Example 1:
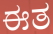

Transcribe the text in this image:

ಈತ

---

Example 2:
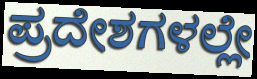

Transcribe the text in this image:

ಪ್ರದೇಶಗಳಲ್ಲೇ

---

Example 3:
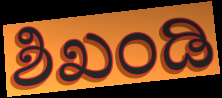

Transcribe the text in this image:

ಶಿಖಂಡಿ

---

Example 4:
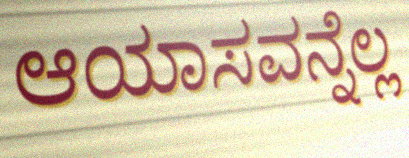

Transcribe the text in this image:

ಆಯಾಸವನ್ನೆಲ್ಲ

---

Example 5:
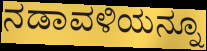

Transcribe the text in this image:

ನಡಾವಳಿಯನ್ನೂ